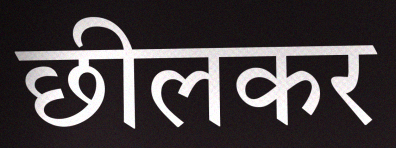
छीलकर